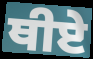
ਥੀਏ